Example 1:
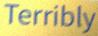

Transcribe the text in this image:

Terribly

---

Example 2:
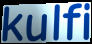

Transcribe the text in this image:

kulfi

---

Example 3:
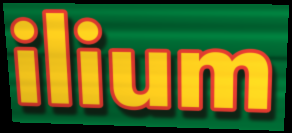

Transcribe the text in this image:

ilium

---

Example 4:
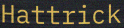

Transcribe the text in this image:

Hattrick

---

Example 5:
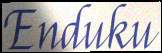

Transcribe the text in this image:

Enduku